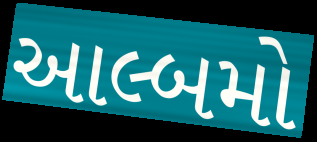
આલ્બમો